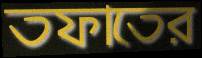
তফাতের